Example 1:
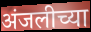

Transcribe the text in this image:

अंजलीच्या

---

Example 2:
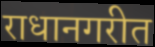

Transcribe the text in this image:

राधानगरीत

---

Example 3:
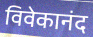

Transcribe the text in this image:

विवेकानंद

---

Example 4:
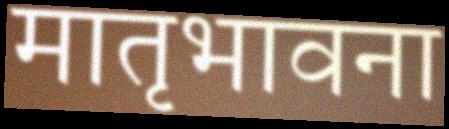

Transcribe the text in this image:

मातृभावना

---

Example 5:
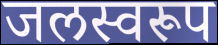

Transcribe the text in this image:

जलस्वरूप